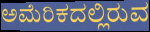
ಅಮೆರಿಕದಲ್ಲಿರುವ